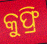
କୁଫ୍ରି